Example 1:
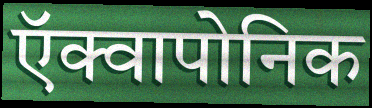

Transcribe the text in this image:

ऍक्वापोनिक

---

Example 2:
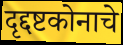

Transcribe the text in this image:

दृद्दष्टकोनाचे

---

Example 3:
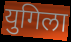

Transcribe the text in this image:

युगिला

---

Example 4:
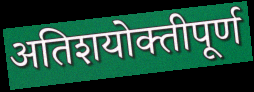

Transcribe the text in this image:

अतिशयोक्तीपूर्ण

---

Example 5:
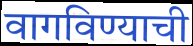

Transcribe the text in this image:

वागविण्याची